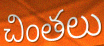
చింతలు